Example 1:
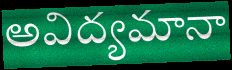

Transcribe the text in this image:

అవిద్యమానా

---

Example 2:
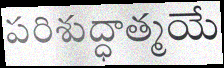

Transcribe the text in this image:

పరిశుద్ధాత్మయే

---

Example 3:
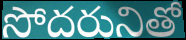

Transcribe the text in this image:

సోదరునితో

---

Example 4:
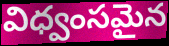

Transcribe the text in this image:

విధ్వంసమైన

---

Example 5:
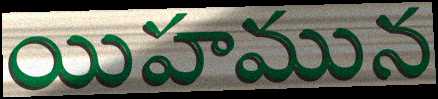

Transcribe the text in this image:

యిహమున